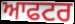
ਆਫਟਰ